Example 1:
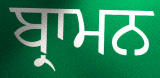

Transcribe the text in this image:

ਬ੍ਰਾਮਨ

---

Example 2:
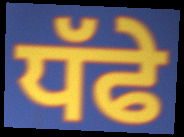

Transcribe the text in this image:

ਧੱਫੇ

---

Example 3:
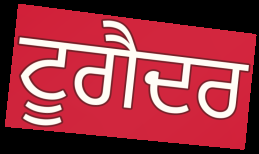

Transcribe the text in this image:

ਟੂਗੈਦਰ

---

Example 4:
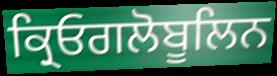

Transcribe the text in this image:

ਕ੍ਰਿਓਗਲੋਬੂਲਿਨ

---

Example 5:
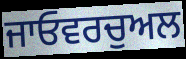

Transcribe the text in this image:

ਜਾਓਵਰਚੁਅਲ